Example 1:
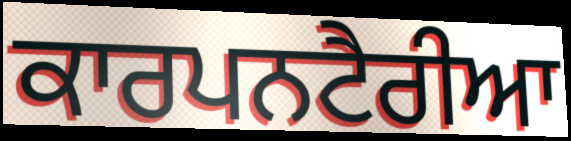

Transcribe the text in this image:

ਕਾਰਪਨਟੈਰੀਆ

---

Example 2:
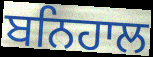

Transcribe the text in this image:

ਬਨਿਹਾਲ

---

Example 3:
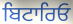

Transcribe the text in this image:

ਬਿਟਾਰਿਓ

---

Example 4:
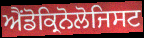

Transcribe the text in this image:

ਐਂਡੋਕ੍ਰਿਨੋਲੋਜਿਸਟ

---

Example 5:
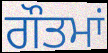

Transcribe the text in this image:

ਗੌਤਮਾਂ